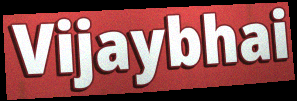
Vijaybhai